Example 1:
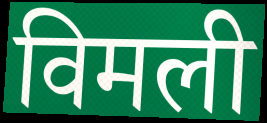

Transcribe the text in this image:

विमली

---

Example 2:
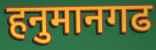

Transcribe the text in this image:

हनुमानगढ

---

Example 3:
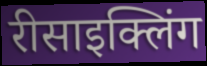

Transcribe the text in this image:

रीसाइक्लिंग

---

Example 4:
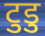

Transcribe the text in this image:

टुडु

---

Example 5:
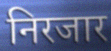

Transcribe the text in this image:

निरजार